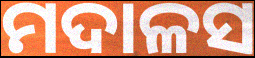
ମଦାଳସ